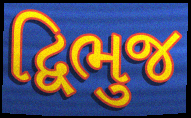
દ્વિભુજ